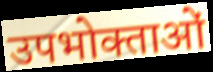
उपभोक्‍ताओं